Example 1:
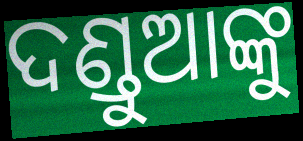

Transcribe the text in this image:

ଦଣ୍ଡୁଆଙ୍କୁ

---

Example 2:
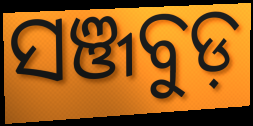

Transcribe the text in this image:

ସଞ୍ଜବୁଡ଼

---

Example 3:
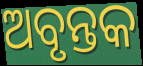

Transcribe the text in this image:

ଅବୃନ୍ତକ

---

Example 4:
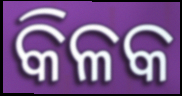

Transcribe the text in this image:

କିଳକ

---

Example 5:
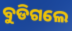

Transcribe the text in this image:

ବୁଡିଗଲେ